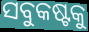
ସବୁକଷ୍ଟକୁ